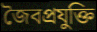
জৈবপ্রযুক্তি